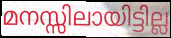
മനസ്സിലായിട്ടില്ല